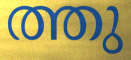
ത്തു